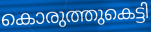
കൊരുത്തുകെട്ടി